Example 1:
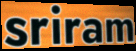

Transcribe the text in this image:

sriram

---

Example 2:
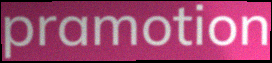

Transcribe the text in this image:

pramotion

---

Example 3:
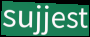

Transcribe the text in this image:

sujjest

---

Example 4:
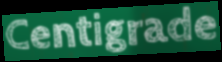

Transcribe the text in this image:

Centigrade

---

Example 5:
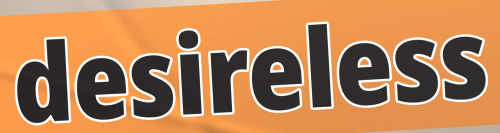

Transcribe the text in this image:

desireless